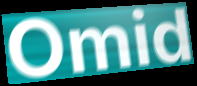
Omid